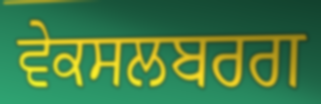
ਵੇਕਸਲਬਰਗ